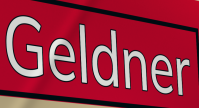
Geldner